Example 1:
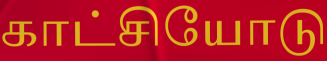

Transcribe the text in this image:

காட்சியோடு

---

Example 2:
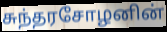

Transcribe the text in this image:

சுந்தரசோழனின்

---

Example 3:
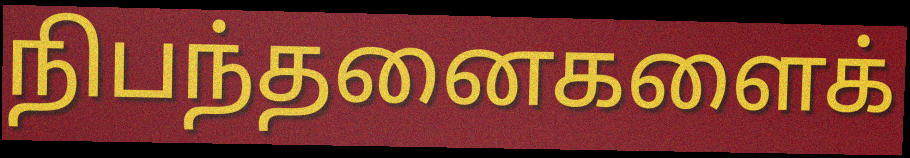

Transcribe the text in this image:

நிபந்தனைகளைக்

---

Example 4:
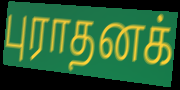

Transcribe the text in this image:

புராதனக்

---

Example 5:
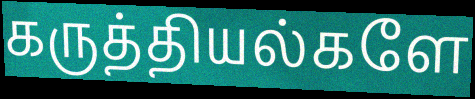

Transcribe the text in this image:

கருத்தியல்களே